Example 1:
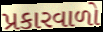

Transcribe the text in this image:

પ્રકારવાળો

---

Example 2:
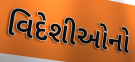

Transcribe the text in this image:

વિદેશીઓનો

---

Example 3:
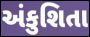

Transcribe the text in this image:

અંકુશિતા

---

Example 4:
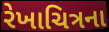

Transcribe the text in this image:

રેખાચિત્રના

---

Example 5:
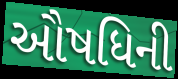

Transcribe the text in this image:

ઔષધિની